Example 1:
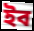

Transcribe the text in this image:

ইব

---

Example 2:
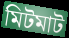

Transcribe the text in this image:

মিটমাট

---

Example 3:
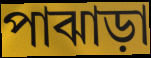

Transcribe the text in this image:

পাঝাড়া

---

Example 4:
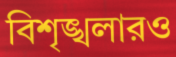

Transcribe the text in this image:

বিশৃঙ্খলারও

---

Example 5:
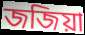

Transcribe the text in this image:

জজিয়া